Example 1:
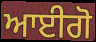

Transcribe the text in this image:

ਆਈਗੋ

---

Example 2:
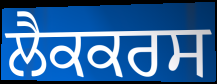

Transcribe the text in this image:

ਲੈਕਕਰਸ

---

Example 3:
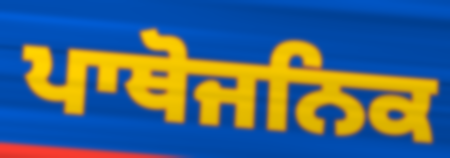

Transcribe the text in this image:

ਪਾਥੋਜਨਿਕ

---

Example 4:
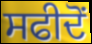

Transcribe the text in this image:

ਸਫੀਦੋਂ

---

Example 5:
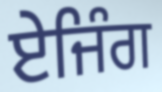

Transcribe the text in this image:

ਏਜਿੰਗ